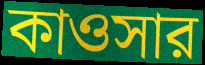
কাওসার